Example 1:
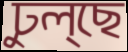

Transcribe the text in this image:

ঢুল্‌ছে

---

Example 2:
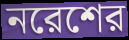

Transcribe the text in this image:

নরেশের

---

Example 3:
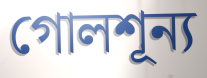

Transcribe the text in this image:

গোলশূন্য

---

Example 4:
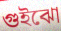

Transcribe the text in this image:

গুইঝো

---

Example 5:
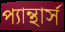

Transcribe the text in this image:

প্যান্থার্স